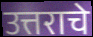
उत्तराचे